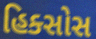
હિક્સોસ